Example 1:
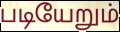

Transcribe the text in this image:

படியேறும்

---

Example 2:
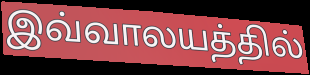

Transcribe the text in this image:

இவ்வாலயத்தில்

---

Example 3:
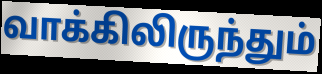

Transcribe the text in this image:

வாக்கிலிருந்தும்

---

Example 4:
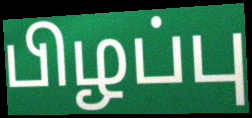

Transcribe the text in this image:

பிழப்பு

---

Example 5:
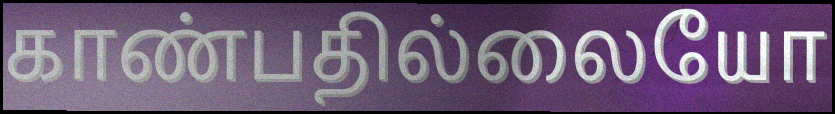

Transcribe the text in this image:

காண்பதில்லையோ